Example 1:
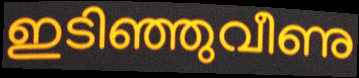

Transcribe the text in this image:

ഇടിഞ്ഞുവീണു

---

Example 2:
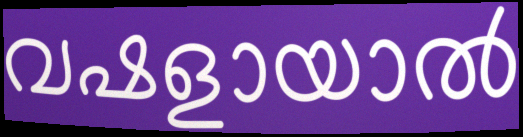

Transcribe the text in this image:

വഷളായാൽ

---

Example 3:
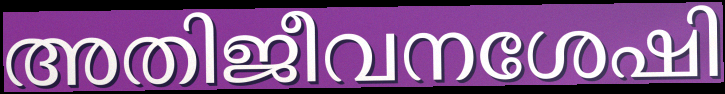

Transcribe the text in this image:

അതിജീവനശേഷി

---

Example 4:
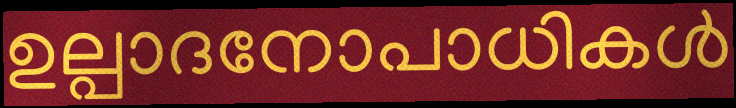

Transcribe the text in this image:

ഉല്പാദനോപാധികൾ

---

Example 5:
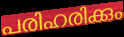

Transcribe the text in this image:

പരിഹരിക്കും